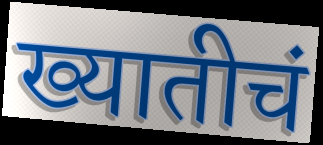
ख्यातीचं